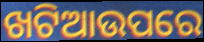
ଖଟିଆଉପରେ